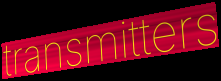
transmitters